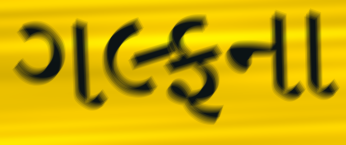
ગલ્ફના